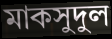
মাকসুদুল